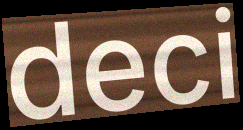
deci